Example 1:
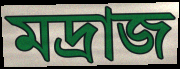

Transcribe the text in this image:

মদ্রাজ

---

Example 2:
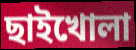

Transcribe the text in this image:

ছাইখোলা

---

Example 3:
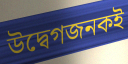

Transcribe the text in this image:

উদ্বেগজনকই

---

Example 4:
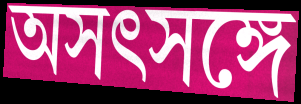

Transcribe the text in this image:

অসৎসঙ্গে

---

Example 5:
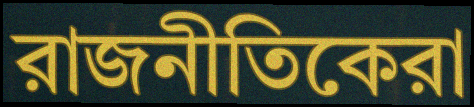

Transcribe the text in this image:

রাজনীতিকেরা